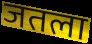
जतला